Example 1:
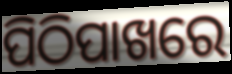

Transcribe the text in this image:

ପିଠିପାଖରେ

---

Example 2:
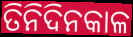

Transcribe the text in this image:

ତିନିଦିନକାଳ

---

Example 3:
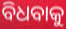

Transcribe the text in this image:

ବିଧବାକୁ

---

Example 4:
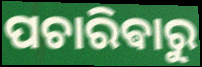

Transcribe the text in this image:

ପଚାରିଵାରୁ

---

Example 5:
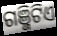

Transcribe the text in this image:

ଗଞ୍ଜିଟିଏ